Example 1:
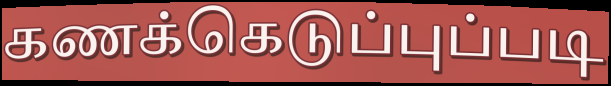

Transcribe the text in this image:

கணக்கெடுப்புப்படி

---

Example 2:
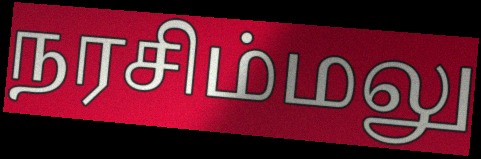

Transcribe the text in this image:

நரசிம்மலு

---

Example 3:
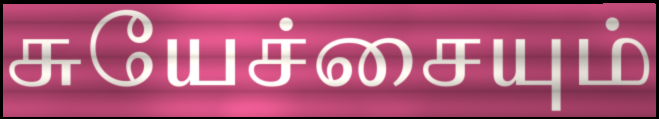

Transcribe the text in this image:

சுயேச்சையும்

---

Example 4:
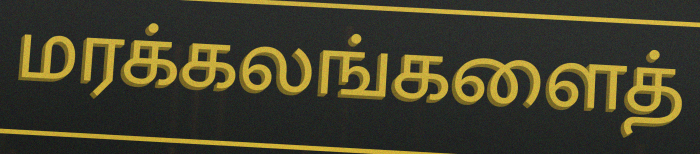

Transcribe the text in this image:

மரக்கலங்களைத்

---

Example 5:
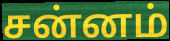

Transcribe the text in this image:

சன்னம்